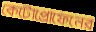
কেটোপ্রোফেনের